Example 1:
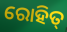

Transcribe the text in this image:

ରୋହିତ୍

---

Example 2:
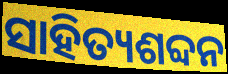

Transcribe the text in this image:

ସାହିତ୍ୟଶବ୍ଦନ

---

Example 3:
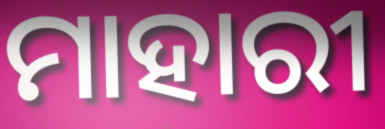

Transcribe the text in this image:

ମାହାରୀ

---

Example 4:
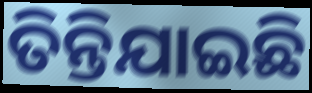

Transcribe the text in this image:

ତିନ୍ତିଯାଇଛି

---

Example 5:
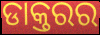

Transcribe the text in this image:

ଡାକ୍ତରର